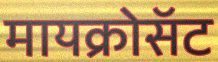
मायक्रोसॅट